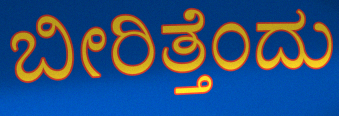
ಬೀರಿತ್ತೆಂದು